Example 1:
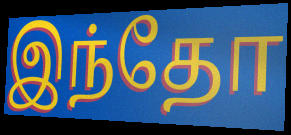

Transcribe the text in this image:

இந்தோ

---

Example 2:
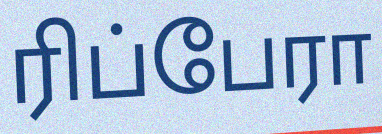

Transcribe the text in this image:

ரிப்பேரா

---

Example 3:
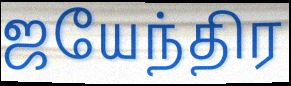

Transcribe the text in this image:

ஜயேந்திர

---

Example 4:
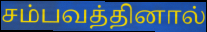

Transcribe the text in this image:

சம்பவத்தினால்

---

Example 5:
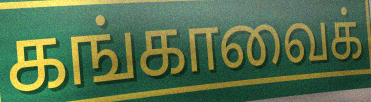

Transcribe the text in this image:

கங்காவைக்